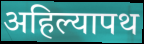
अहिल्यापथ